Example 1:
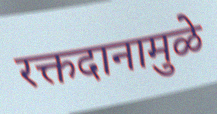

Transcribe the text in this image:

रक्तदानामुळे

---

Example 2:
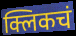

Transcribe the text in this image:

क्लिकचं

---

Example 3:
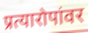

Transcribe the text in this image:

प्रत्यारोपांवर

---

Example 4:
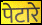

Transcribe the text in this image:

पेटारे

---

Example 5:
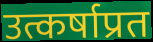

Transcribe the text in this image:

उत्कर्षाप्रत